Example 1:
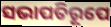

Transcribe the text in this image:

ସଭାପତିରୂପେ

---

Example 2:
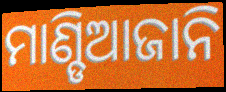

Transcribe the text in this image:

ମାଣ୍ଡିଆଜାନି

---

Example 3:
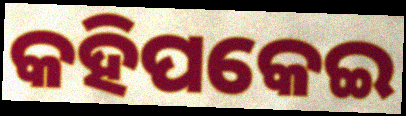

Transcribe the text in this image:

କହିପକେଇ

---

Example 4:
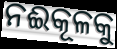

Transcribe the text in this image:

ନଈକୂଳକୁ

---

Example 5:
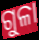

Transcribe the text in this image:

ଗୁଳା